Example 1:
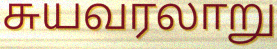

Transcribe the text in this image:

சுயவரலாறு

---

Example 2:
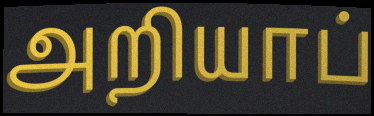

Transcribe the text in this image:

அறியாப்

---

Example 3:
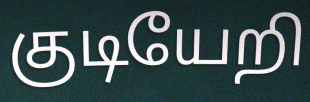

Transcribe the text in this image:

குடியேறி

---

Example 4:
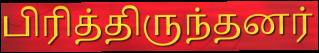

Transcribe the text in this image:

பிரித்திருந்தனர்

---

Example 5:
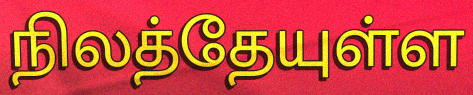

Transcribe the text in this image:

நிலத்தேயுள்ள